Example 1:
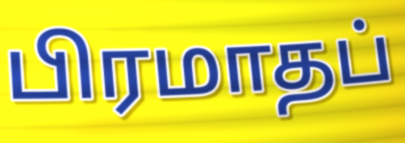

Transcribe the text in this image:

பிரமாதப்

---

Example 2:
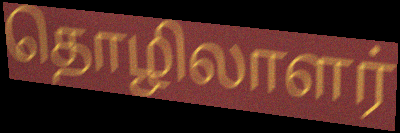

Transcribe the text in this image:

தொழிலாளர்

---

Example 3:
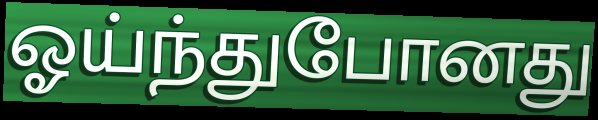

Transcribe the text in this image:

ஓய்ந்துபோனது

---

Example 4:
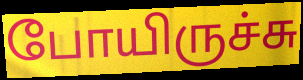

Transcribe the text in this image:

போயிருச்சு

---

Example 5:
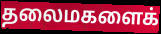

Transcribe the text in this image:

தலைமகளைக்